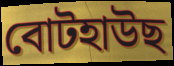
বোটহাউছ